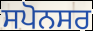
ਸਪੋਨਸਰ